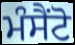
ਮੰਸੈਂਟੋ